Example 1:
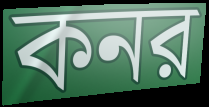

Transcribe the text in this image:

কনর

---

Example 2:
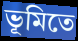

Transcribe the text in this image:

ভূমিতে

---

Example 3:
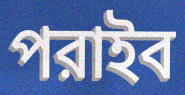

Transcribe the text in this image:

পরাইব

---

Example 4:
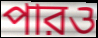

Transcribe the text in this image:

পারও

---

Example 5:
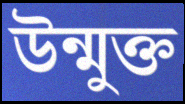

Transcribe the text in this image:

উন্মুক্ত